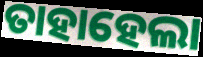
ତାହାହେଲା